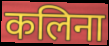
कलिना